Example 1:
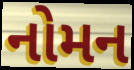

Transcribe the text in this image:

નોમન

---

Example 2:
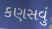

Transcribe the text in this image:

કણસવું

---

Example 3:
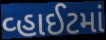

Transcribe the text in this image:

વ્હાઈટમાં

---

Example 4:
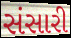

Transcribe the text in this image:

સંસારી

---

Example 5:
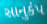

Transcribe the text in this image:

સાનુકંપ